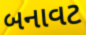
બનાવટ